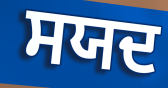
ਸਯਦ